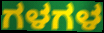
ಗಳಗಳ